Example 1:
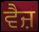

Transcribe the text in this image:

ਵੈਜ਼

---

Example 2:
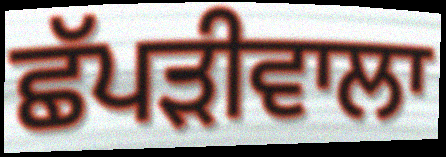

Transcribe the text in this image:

ਛੱਪੜੀਵਾਲਾ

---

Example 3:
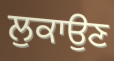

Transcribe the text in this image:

ਲੁਕਾਉਣ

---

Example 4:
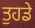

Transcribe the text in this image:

ਤੁਹਡੇ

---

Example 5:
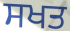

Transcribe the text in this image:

ਸਖਤ